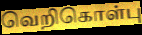
வெறிகொள்பு